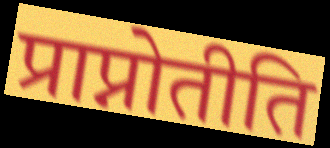
प्राप्नोतीति